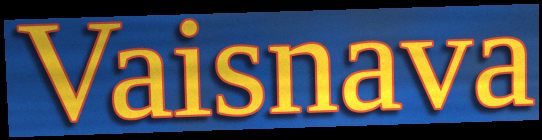
Vaisnava